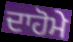
ਦਾਹੋਮੇ